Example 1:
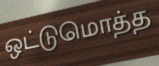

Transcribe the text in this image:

ஒட்டுமொத்த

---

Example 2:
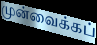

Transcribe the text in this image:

முன்வைக்கப்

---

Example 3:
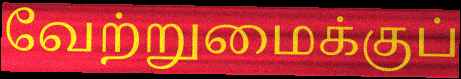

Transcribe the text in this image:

வேற்றுமைக்குப்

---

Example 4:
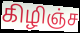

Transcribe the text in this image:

கிழிஞ்ச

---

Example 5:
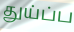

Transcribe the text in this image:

துய்ப்ப